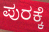
ಪುರಕ್ಕೆ